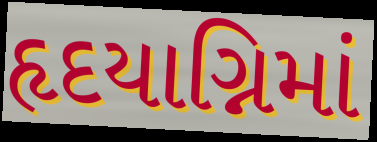
હૃદયાગ્નિમાં